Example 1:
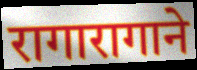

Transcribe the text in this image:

रागारागाने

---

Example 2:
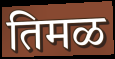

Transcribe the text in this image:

तिमळ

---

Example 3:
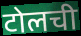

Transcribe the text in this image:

टोलची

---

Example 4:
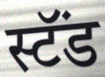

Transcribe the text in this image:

स्टॅंड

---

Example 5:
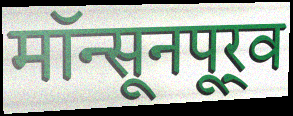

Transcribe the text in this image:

मॉन्सूनपूर्व